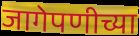
जागेपणीच्या